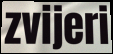
zvijeri